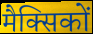
मैक्सिकों